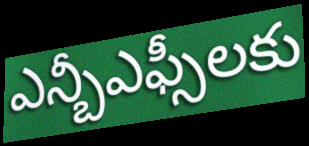
ఎన్బీఎఫ్సీలకు